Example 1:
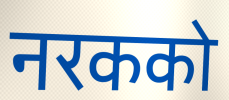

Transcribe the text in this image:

नरकको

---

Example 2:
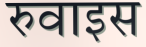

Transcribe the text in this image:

रुवाइस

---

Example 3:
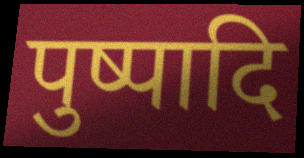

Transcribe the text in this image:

पुष्पादि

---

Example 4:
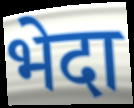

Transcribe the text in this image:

भेदा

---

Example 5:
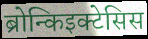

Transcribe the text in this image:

ब्रोन्किइक्टेसिस